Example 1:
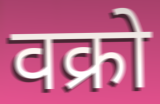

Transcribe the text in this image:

वक्रो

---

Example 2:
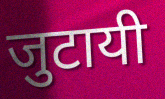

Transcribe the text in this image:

जुटायी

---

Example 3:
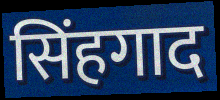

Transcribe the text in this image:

सिंहगाद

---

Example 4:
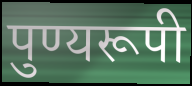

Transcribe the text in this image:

पुण्यरूपी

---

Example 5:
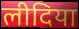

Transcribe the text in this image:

लीदिया